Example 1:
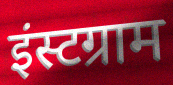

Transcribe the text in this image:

इंस्टग्राम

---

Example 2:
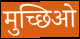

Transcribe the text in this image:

मुच्छिओ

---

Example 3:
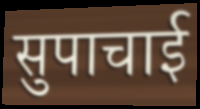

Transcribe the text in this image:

सुपाचाई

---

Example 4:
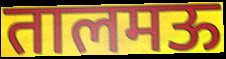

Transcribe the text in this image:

तालमऊ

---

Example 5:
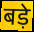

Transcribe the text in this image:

बड़े